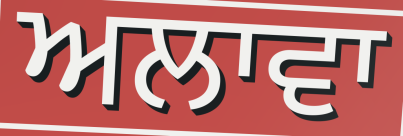
ਅਲਾਵਾ